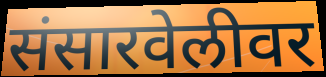
संसारवेलीवर